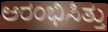
ಆರಂಭಿಸಿತ್ತು